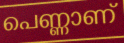
പെണ്ണാണ്